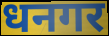
धनगर